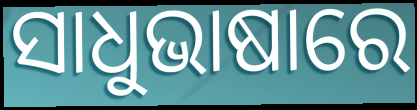
ସାଧୁଭାଷାରେ